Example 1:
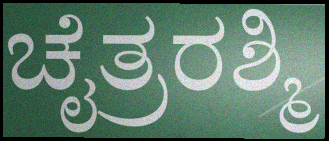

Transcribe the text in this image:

ಚೈತ್ರರಶ್ಮಿ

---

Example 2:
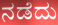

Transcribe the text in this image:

ನಡೆದು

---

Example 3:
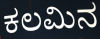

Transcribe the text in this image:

ಕಲಮಿನ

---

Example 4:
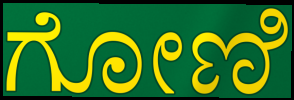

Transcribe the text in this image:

ಗೋಣಿ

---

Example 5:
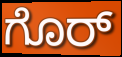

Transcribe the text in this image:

ಗೊರ್